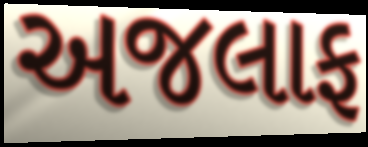
અજલાફ